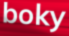
boky